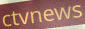
ctvnews